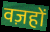
वज़हों